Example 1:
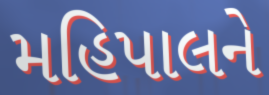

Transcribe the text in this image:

મહિપાલને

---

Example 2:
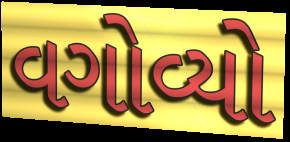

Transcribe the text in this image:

વગોવ્યો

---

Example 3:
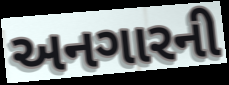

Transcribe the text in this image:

અનગારની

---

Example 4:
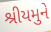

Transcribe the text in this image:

શ્રીયમુને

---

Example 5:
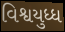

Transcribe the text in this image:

વિશ્વયુધ્ધ